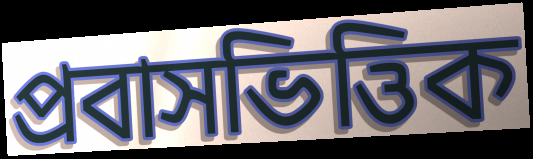
প্রবাসভিত্তিক